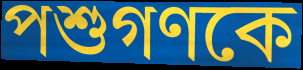
পশুগণকে